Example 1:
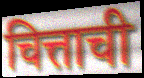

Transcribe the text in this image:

चित्ताची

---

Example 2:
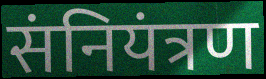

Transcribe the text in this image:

संनियंत्रण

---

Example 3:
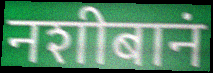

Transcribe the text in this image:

नशीबानं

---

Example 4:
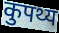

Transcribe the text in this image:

कुपथ्य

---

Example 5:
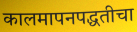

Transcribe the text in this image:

कालमापनपद्धतीचा